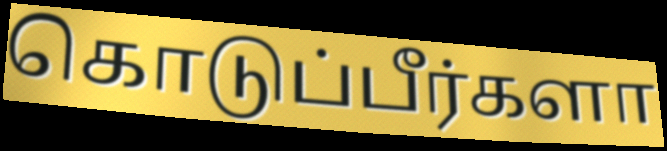
கொடுப்பீர்களா